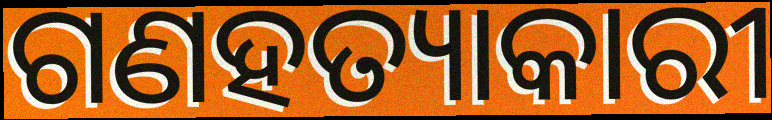
ଗଣହତ୍ୟାକାରୀ